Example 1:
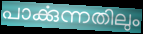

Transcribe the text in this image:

പാൎക്കുന്നതിലും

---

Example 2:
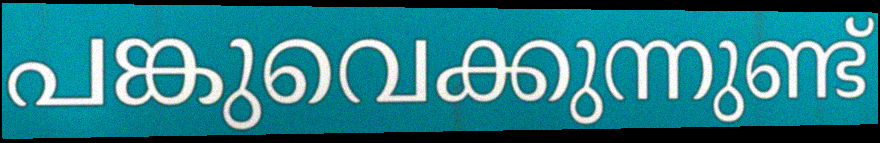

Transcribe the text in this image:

പങ്കുവെക്കുന്നുണ്ട്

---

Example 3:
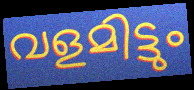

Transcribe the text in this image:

വളമിട്ടും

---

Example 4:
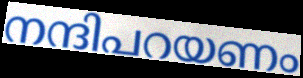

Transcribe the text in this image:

നന്ദിപറയണം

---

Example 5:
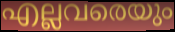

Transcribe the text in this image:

എല്ലവരെയും